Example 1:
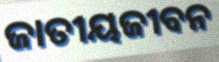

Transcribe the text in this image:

ଜାତୀୟଜୀବନ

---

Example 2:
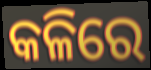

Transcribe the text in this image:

କଳିରେ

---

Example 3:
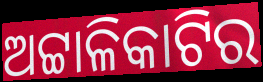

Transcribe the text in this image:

ଅଟ୍ଟାଳିକାଟିର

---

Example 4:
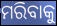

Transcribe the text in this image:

ମରିବାକୁ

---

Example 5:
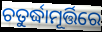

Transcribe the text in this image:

ଚତୁର୍ଦ୍ଧାମୂର୍ତ୍ତିରେ